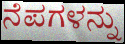
ನೆಪಗಳನ್ನು